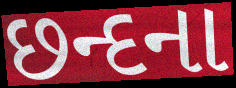
છન્દના